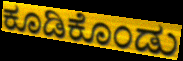
ಕೂಡಿಕೊಂಡು